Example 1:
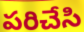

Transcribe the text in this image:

పరిచేసి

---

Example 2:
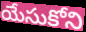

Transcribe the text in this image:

యేసుకోని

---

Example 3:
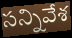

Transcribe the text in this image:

సన్నివేశ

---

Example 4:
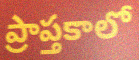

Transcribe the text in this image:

ప్రాప్తకాలో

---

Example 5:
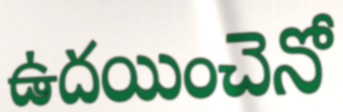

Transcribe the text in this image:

ఉదయించెనో